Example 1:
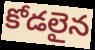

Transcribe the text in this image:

కోడలైన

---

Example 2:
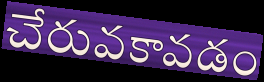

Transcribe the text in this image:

చేరువకావడం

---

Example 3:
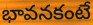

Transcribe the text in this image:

భావనకంటే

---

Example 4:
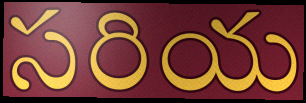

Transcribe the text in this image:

సరియ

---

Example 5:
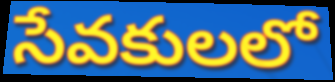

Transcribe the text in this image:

సేవకులలో